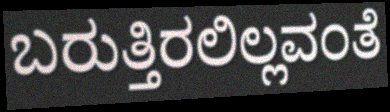
ಬರುತ್ತಿರಲಿಲ್ಲವಂತೆ